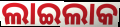
ଲାଇଲାକ